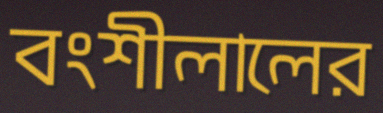
বংশীলালের